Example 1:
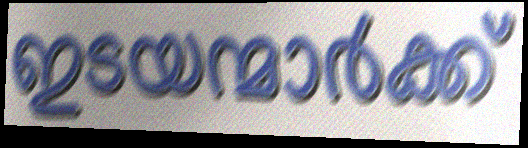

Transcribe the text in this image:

ഇടയന്മാർക്ക്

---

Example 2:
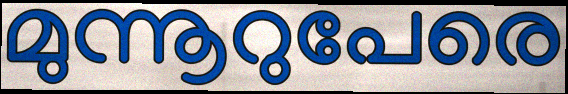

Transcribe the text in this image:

മുന്നൂറുപേരെ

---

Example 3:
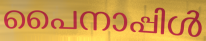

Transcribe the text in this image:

പൈനാപ്പിൾ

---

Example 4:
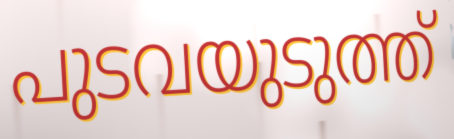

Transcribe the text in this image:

പുടവയുടുത്ത്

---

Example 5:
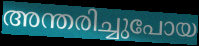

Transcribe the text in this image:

അന്തരിച്ചുപോയ